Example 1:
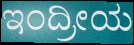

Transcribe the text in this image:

ಇಂದ್ರೀಯ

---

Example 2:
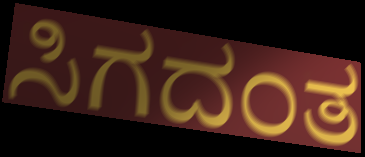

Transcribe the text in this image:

ಸಿಗದಂತ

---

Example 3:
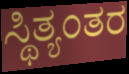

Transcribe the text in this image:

ಸ್ಥಿತ್ಯಂತರ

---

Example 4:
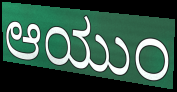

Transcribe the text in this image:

ಆಯುಂ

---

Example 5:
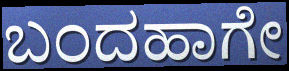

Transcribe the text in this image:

ಬಂದಹಾಗೇ